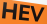
HEV